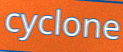
cyclone